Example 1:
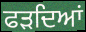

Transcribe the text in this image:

ਫੜਦਿਆਂ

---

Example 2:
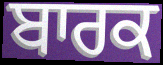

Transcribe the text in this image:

ਬਾਰਕ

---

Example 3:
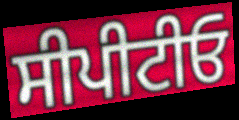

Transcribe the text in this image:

ਸੀਪੀਟੀਓ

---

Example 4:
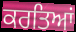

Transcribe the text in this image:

ਕਰਤਿਆਂ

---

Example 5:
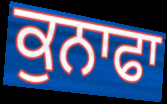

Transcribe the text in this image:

ਕੁਨਾਫਾ